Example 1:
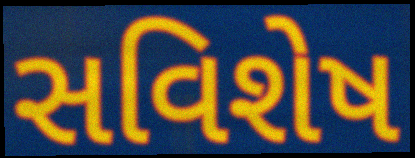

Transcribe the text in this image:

સવિશેષ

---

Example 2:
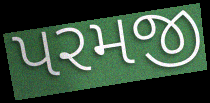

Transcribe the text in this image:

પરમજી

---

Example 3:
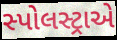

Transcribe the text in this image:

સ્પોલસ્ટ્રાએ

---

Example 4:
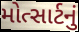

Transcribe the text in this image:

મોત્સાર્ટનું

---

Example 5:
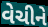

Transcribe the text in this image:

વેચીને